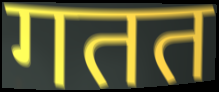
गतत